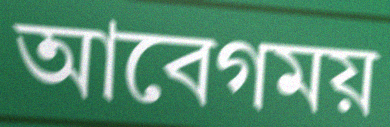
আবেগময়